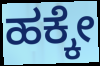
ಹಕ್ಕೇ